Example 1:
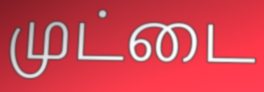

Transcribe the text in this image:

முட்டை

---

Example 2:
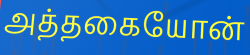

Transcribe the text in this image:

அத்தகையோன்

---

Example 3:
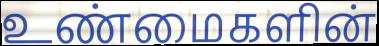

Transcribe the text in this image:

உண்மைகளின்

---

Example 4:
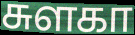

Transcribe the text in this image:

சுளகா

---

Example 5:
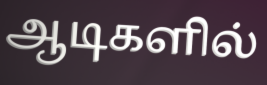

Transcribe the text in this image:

ஆடிகளில்